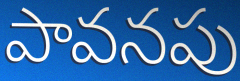
పావనపు